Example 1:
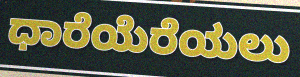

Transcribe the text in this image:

ಧಾರೆಯೆರೆಯಲು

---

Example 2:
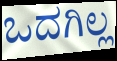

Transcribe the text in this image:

ಒದಗಿಲ್ಲ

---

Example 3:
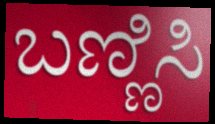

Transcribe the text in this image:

ಬಣ್ಣಿಸಿ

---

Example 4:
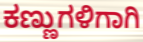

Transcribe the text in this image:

ಕಣ್ಣುಗಳಿಗಾಗಿ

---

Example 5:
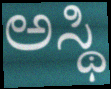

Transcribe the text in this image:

ಅಸ್ಥಿ